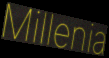
Millenia